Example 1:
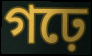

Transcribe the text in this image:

গঢ়ে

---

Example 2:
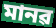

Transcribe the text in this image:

মানৱ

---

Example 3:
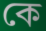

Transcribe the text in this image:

কে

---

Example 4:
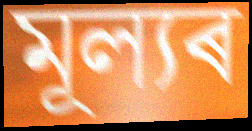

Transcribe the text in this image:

মূল্যৰ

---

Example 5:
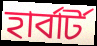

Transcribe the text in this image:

হাৰ্বাৰ্ট